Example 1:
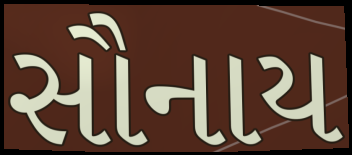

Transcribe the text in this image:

સૌનાય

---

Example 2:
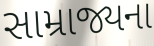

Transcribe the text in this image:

સામ્રાજ્યના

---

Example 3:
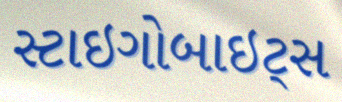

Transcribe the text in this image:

સ્ટાઇગોબાઇટ્સ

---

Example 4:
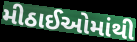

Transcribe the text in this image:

મીઠાઈઓમાંથી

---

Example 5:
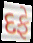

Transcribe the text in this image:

દફે